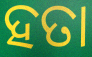
ହତା